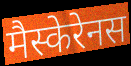
मैस्केरेनस